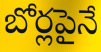
బోర్లపైనే